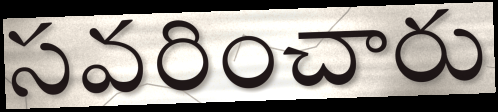
సవరించారు